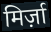
मिर्ज़ा